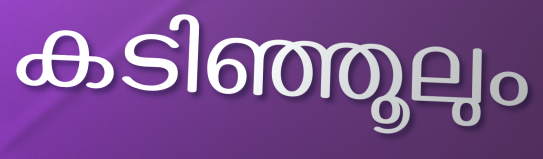
കടിഞ്ഞൂലും